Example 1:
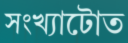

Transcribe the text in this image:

সংখ্যাটোত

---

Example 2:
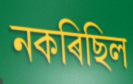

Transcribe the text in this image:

নকৰিছিল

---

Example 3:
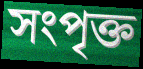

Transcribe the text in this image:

সংপৃক্ত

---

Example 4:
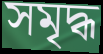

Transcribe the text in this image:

সমৃদ্ধ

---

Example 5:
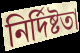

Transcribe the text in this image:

নিৰ্দিষ্টতা